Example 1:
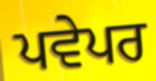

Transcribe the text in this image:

ਪਵੇਪਰ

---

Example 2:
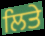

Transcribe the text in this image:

ਲਿਤੇ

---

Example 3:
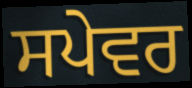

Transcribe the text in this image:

ਸਪੇਵਰ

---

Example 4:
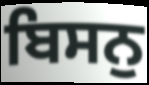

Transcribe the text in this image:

ਬਿਸਨੁ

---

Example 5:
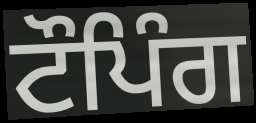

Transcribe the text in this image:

ਟੌਪਿੰਗ